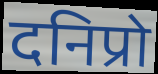
दनिप्रो